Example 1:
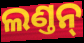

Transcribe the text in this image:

ଲଣ୍ତନ୍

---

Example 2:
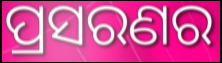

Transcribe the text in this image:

ପ୍ରସରଣର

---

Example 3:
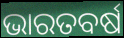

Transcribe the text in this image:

ଭାରତବର୍ଷ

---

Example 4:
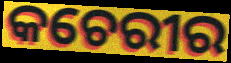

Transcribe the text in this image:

କଚେରୀର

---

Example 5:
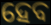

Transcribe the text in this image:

ହେବ